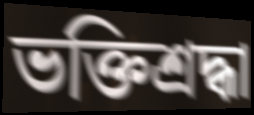
ভক্তিশ্রদ্ধা